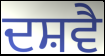
ਦਸ਼ਵੈ